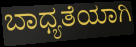
ಬಾಧ್ಯತೆಯಾಗಿ